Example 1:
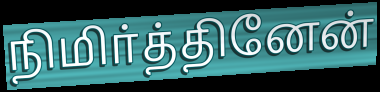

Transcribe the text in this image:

நிமிர்த்தினேன்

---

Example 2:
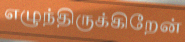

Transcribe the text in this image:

எழுந்திருக்கிறேன்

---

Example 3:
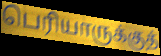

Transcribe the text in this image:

பெரியாருக்குத்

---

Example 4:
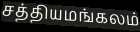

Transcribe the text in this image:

சத்தியமங்கலம்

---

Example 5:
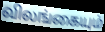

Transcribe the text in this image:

விலங்கையும்